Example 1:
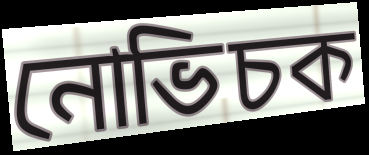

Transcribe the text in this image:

নোভিচক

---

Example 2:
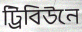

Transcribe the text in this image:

ট্রিবিউনে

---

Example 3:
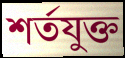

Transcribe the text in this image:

শর্তযুক্ত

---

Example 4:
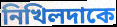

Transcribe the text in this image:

নিখিলদাকে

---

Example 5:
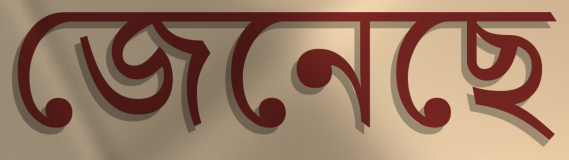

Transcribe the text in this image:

জেনেছে